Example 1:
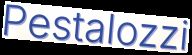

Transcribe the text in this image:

Pestalozzi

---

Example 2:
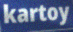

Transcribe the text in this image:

kartoy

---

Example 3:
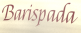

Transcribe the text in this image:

Barispada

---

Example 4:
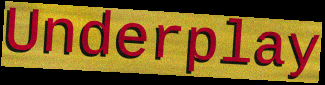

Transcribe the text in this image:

Underplay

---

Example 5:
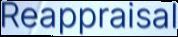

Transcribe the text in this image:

Reappraisal